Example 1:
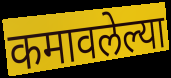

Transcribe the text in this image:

कमावलेल्या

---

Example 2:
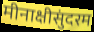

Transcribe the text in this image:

मीनाक्षीसुंदरम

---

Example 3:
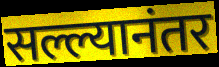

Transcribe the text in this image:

सल्ल्यानंतर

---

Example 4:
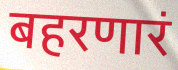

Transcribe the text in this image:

बहरणारं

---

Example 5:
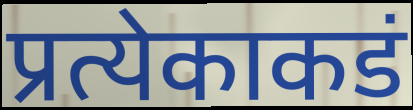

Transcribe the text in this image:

प्रत्येकाकडं